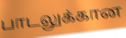
பாடலுக்கான